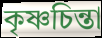
কৃষ্ণচিন্তা